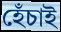
হেঁচাই